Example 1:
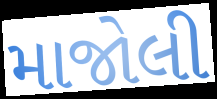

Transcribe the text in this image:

માજોલી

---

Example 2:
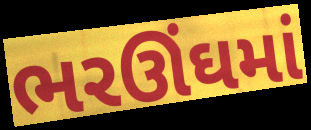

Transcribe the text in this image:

ભરઊંઘમાં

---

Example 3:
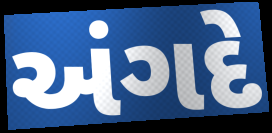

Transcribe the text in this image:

અંગદે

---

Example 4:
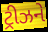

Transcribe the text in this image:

ટ્રીઝને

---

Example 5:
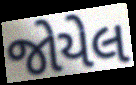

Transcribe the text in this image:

જોયેલ